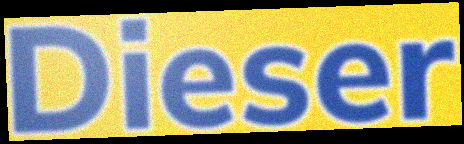
Dieser